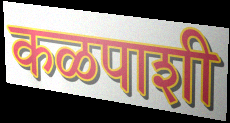
कळपाशी